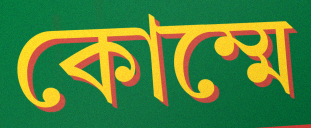
কোম্মে